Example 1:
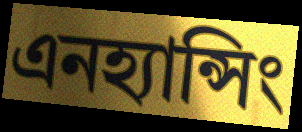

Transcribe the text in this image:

এনহ্যান্সিং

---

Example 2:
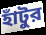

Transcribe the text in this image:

হাঁটুর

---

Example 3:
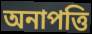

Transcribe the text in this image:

অনাপত্তি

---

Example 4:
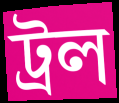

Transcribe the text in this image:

ট্রল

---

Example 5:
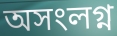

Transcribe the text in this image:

অসংলগ্ন